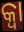
କ୍ଵା